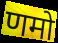
णमो